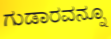
ಗುಡಾರವನ್ನೂ